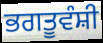
ਭਗਤੂਵੰਸ਼ੀ